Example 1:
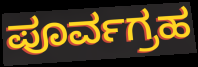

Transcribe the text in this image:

ಪೂರ್ವಗ್ರಹ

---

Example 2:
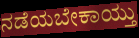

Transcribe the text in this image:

ನಡೆಯಬೇಕಾಯ್ತು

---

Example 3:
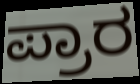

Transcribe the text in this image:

ಪ್ರಾರ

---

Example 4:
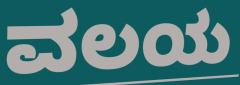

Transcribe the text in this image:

ವಲಯ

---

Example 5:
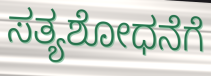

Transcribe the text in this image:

ಸತ್ಯಶೋಧನೆಗೆ